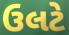
ઉલટે